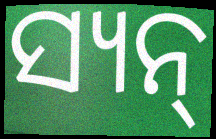
ସ୍ୟନ୍